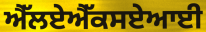
ਐੱਲਏਐੱਕਸਏਆਈ